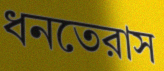
ধনতেরাস